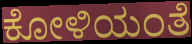
ಕೋಳಿಯಂತೆ